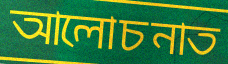
আলোচনাত